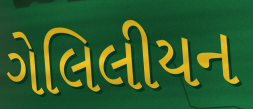
ગેલિલીયન